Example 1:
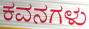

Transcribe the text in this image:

ಕವನಗಳು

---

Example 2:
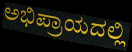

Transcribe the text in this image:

ಅಭಿಪ್ರಾಯದಲ್ಲಿ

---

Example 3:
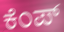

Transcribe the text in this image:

ಕೆಂಪ್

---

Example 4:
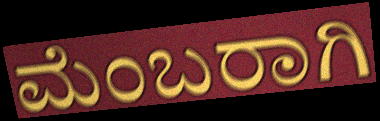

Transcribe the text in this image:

ಮೆಂಬರಾಗಿ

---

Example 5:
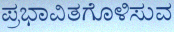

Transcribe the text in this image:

ಪ್ರಭಾವಿತಗೊಳಿಸುವ